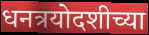
धनत्रयोदशीच्या